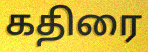
கதிரை